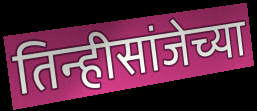
तिन्हीसांजेच्या